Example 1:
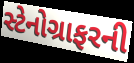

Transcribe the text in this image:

સ્ટેનોગ્રાફરની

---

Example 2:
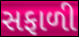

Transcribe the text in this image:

સફાળી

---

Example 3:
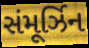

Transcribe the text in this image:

સંમૂર્ઝિન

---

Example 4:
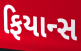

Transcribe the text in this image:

ફિયાન્સ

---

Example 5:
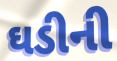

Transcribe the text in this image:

ઘડીની